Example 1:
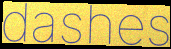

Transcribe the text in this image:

dashes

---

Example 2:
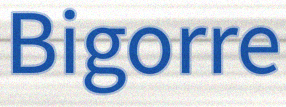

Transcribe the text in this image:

Bigorre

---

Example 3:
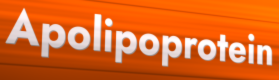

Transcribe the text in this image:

Apolipoprotein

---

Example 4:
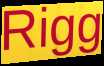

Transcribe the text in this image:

Rigg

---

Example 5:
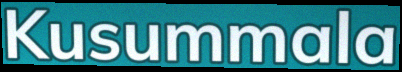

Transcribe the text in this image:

Kusummala